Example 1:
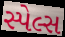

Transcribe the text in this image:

સ્પેલ્સ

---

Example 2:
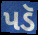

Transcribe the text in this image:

પડૅ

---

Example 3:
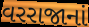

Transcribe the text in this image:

વરરાજાનાં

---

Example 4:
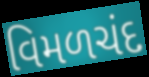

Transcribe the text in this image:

વિમળચંદ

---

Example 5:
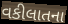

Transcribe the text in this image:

વકીલાતના